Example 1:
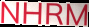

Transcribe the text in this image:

NHRM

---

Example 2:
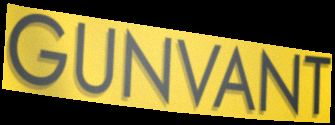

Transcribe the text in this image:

GUNVANT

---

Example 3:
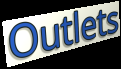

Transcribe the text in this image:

Outlets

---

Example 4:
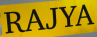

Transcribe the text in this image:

RAJYA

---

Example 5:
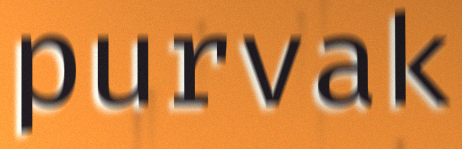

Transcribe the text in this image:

purvak